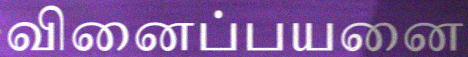
வினைப்பயனை